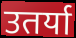
उतर्या